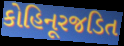
કોહિનૂરજડિત